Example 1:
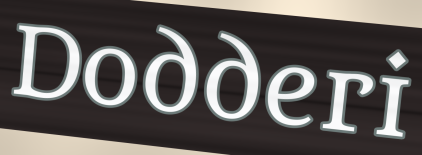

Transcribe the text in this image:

Dodderi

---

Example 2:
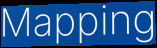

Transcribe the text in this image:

Mapping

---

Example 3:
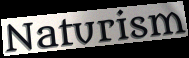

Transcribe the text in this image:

Naturism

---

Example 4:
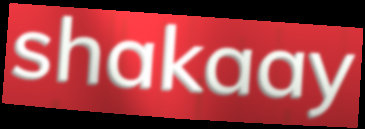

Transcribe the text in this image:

shakaay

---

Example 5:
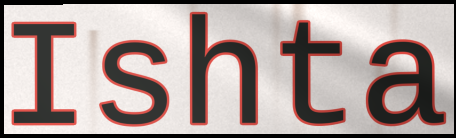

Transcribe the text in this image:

Ishta